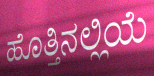
ಹೊತ್ತಿನಲ್ಲಿಯೆ